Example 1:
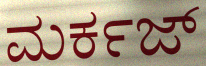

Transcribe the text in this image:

ಮರ್ಕಜ್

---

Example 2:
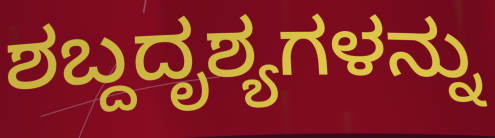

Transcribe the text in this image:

ಶಬ್ದದೃಶ್ಯಗಳನ್ನು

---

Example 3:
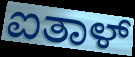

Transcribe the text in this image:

ಐತಾಳ್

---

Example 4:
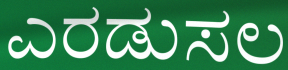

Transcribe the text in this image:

ಎರಡುಸಲ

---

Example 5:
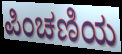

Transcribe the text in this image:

ಪಿಂಚಣಿಯ